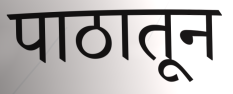
पाठातून